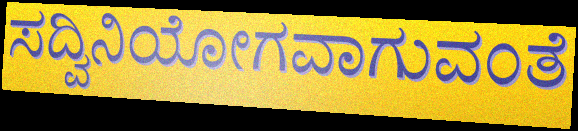
ಸದ್ವಿನಿಯೋಗವಾಗುವಂತೆ